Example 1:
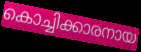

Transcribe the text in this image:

കൊച്ചിക്കാരനായ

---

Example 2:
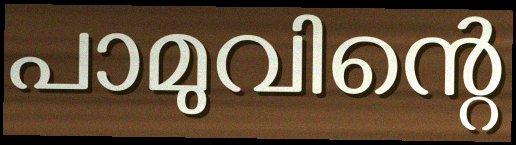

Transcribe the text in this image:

പാമുവിന്റെ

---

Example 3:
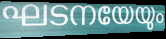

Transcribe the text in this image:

ഘടനയേയും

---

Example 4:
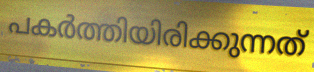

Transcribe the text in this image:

പകർത്തിയിരിക്കുന്നത്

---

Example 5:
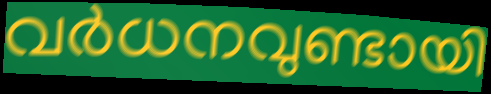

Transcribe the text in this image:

വർധനവുണ്ടായി